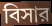
বিসার